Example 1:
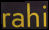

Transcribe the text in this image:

rahi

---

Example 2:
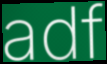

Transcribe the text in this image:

adf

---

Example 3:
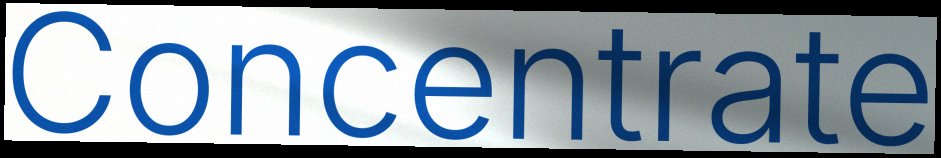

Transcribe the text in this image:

Concentrate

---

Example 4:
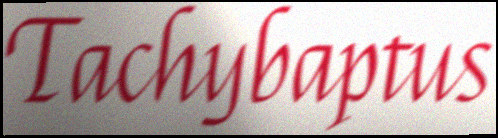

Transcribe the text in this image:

Tachybaptus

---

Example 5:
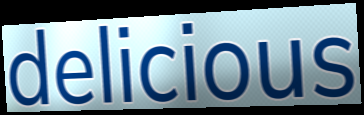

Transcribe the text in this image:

delicious